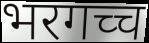
भरगच्च